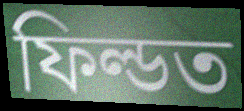
ফিল্ডত